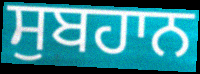
ਸੁਬਹਾਨ